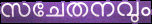
സചേതനവും